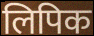
लिपिक